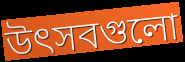
উৎসবগুলো